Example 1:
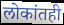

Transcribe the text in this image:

लोकांतही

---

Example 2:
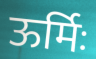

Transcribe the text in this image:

ऊर्मिः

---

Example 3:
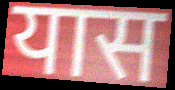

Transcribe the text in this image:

यास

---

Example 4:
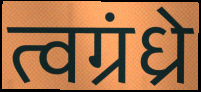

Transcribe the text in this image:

त्वग्रंध्रे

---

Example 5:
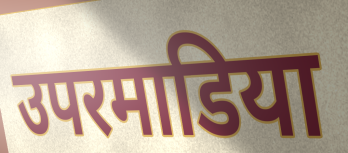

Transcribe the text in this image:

उपरमाडिया